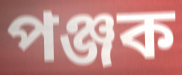
পঞ্জক